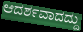
ಆದರ್ಶವಾದದ್ದು